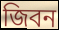
জিবন